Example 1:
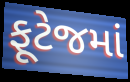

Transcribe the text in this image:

ફૂટેજમાં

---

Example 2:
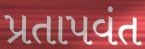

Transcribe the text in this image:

પ્રતાપવંત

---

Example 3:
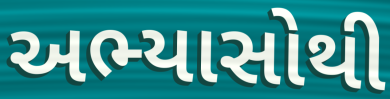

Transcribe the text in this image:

અભ્યાસોથી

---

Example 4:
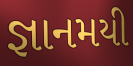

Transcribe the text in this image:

જ્ઞાનમયી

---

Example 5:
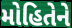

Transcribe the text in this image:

મોહિતેને